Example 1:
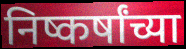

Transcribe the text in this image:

निष्कर्षांच्या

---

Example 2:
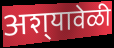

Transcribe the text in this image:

अश्यावेळी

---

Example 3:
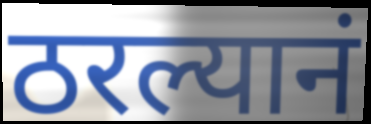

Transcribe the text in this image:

ठरल्यानं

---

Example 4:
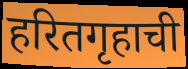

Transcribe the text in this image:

हरितगृहाची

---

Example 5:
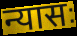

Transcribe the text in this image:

न्यासः